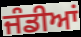
ਜੰਡੀਆਂ